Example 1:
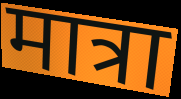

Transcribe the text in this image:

मात्रा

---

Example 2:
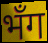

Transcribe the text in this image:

भँग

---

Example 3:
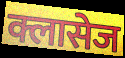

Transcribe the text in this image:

क्लासेज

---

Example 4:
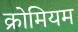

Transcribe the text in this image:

क्रोमियम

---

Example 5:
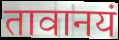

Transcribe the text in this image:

तावानयं